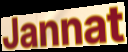
Jannat